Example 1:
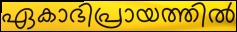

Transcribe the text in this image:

ഏകാഭിപ്രായത്തിൽ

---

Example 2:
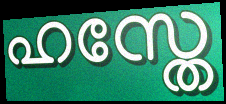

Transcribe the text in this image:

ഹസ്തേ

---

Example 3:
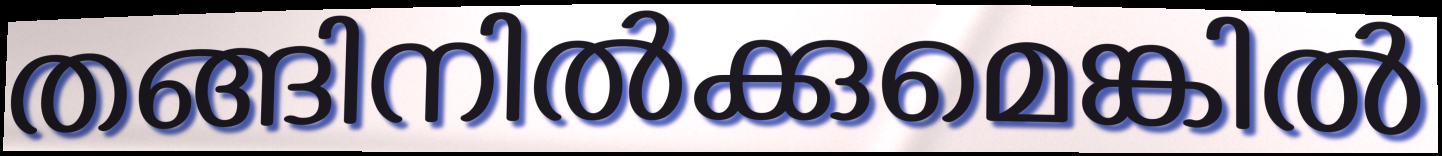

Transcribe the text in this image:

തങ്ങിനിൽക്കുമെങ്കിൽ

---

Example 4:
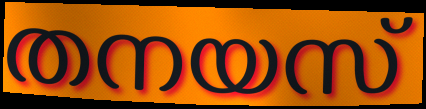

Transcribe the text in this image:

തനയസ്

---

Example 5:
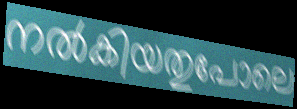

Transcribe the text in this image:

നൽകിയതുപോലെ